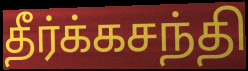
தீர்க்கசந்தி